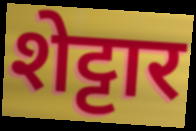
शेट्टार